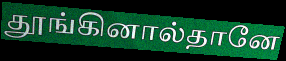
தூங்கினால்தானே